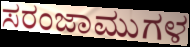
ಸರಂಜಾಮುಗಳ